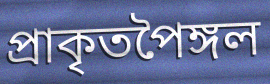
প্ৰাকৃতপৈঙ্গল